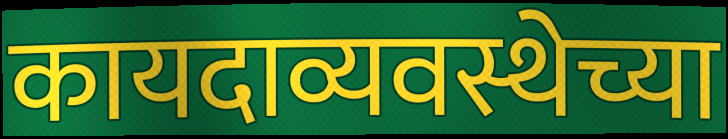
कायदाव्यवस्थेच्या